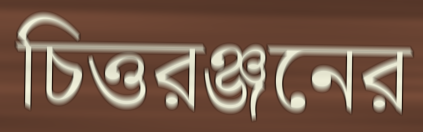
চিত্তরঞ্জনের